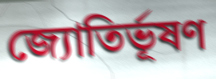
জ্যোতির্ভূষণ